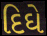
દિઘે